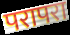
परापरा